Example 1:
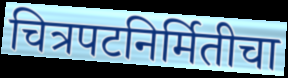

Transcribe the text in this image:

चित्रपटनिर्मितीचा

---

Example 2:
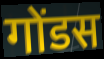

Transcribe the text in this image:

गोंडस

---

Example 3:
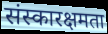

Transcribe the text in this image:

संस्कारक्षमता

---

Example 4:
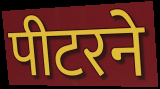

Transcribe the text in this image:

पीटरने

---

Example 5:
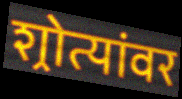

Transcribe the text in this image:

श्रोत्यांवर